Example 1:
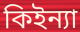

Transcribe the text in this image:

কিইন্যা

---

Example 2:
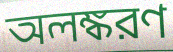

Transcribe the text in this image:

অলঙ্করণ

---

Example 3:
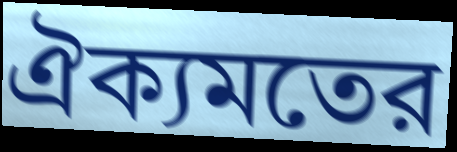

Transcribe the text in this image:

ঐক্যমতের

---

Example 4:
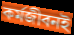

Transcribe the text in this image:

কর্মজীবনই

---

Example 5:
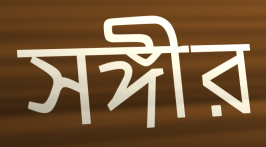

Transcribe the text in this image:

সঙ্গীর